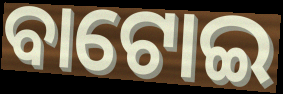
ବାଟୋଇ